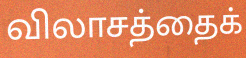
விலாசத்தைக்